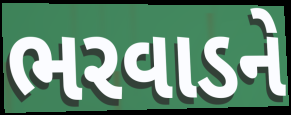
ભરવાડને